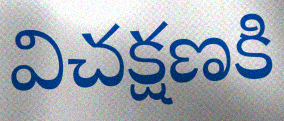
విచక్షణకి